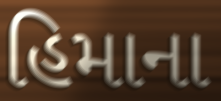
હિમાના